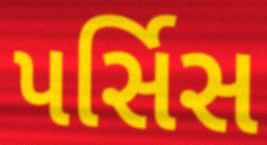
પર્સિસ